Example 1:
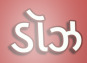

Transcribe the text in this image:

ડૉઝ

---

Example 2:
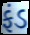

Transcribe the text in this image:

ફંડ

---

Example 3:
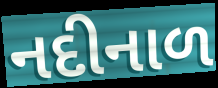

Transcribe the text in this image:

નદીનાળ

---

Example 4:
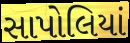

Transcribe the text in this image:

સાપોલિયાં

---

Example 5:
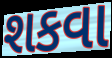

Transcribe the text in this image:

શકવા